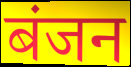
बंजन